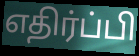
எதிர்ப்பி